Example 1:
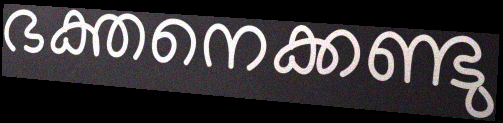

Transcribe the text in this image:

ഭക്തനെക്കണ്ടു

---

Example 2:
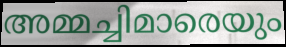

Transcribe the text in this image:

അമ്മച്ചിമാരെയും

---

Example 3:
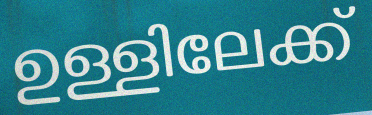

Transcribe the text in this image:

ഉള്ളിലേക്ക്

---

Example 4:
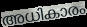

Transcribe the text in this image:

അധികാരം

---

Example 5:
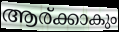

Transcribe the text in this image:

ആര്ക്കാകും